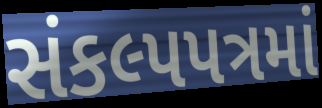
સંકલ્પપત્રમાં